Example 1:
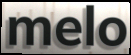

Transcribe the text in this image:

melo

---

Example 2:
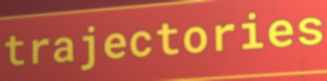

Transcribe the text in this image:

trajectories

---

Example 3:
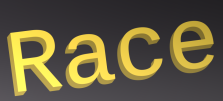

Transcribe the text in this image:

Race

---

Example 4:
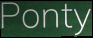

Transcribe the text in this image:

Ponty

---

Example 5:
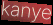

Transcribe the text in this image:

kanye